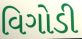
વિગોડી